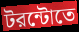
টরন্টোতে